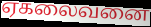
ஏகலைவனை